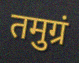
तमुग्रं